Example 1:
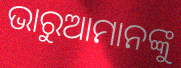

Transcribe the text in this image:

ଭାରୁଆମାନଙ୍କୁ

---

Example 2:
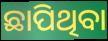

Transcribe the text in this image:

ଛାପିଥିବା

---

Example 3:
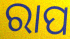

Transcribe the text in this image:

ରାପ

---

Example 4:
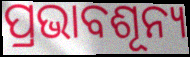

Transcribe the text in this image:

ପ୍ରଭାବଶୂନ୍ୟ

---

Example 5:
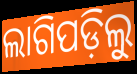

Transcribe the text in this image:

ଲାଗିପଡ଼ିଲୁ